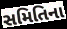
સમિતિના